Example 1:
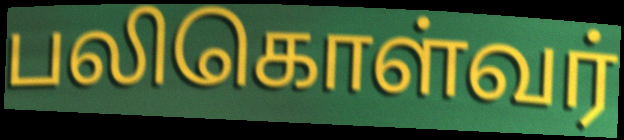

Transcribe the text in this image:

பலிகொள்வர்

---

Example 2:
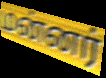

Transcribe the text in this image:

மன்னர்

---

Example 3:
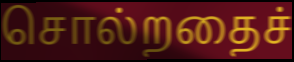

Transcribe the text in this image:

சொல்றதைச்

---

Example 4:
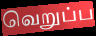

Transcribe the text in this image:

வெறுப்ப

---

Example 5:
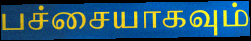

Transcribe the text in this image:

பச்சையாகவும்